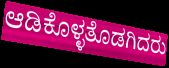
ಆಡಿಕೊಳ್ಳತೊಡಗಿದರು